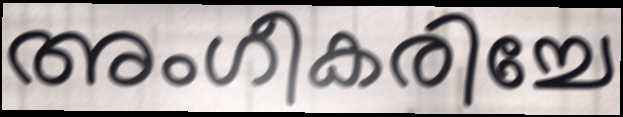
അംഗീകരിച്ചേ